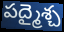
పద్మైశ్చ